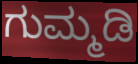
ಗುಮ್ಮಡಿ